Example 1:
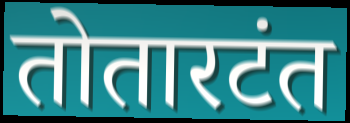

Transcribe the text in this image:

तोतारटंत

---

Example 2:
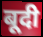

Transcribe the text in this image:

बूदी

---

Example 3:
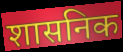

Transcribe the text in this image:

शासनिक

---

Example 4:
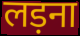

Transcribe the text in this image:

लड़ना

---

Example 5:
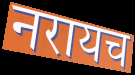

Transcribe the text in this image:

नरायच